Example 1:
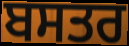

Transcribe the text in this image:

ਬਸਤਰ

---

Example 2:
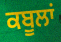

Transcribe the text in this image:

ਕਬੂਲਾਂ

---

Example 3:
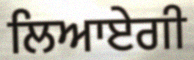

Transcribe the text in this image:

ਲਿਆਏਗੀ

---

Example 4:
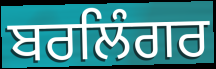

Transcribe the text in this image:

ਬਰਲਿੰਗਰ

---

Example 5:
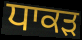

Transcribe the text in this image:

ਧਾਕੜ